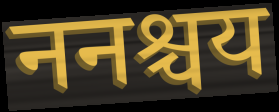
ननश्चय